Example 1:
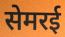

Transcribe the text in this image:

सेमरई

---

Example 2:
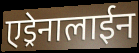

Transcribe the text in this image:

एड्रेनालाईन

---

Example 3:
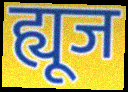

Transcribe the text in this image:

ह्यूज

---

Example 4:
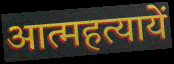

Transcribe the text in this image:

आत्महत्यायें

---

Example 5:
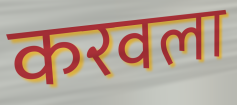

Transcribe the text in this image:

करवला